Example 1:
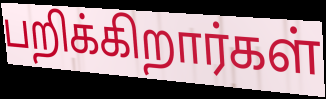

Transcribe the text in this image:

பறிக்கிறார்கள்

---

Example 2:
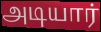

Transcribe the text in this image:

அடியார்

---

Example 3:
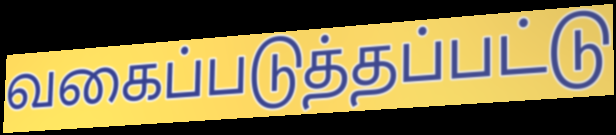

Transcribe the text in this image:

வகைப்படுத்தப்பட்டு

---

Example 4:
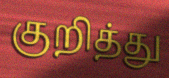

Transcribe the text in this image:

குறித்து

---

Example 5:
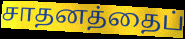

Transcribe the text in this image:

சாதனத்தைப்